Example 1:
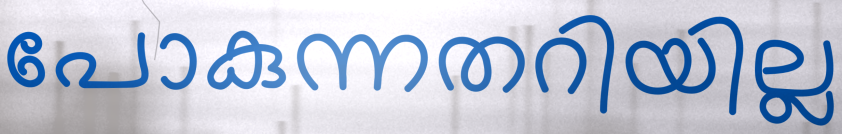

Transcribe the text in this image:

പോകുന്നതറിയില്ല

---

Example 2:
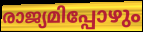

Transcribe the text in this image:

രാജ്യമിപ്പോഴും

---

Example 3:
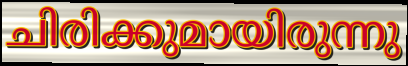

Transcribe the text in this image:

ചിരിക്കുമായിരുന്നു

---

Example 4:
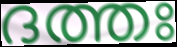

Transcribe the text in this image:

ദത്തഃ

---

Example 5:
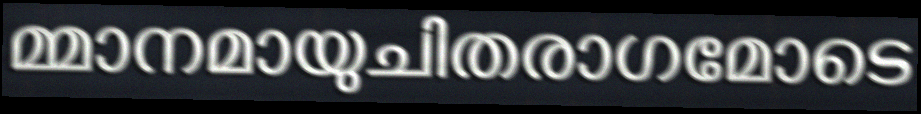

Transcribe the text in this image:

മ്മാനമായുചിതരാഗമോടെ